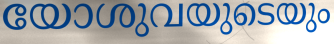
യോശുവയുടെയും